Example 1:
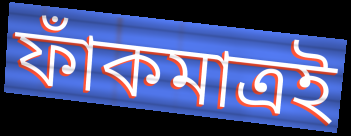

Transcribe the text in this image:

ফাঁকমাত্রই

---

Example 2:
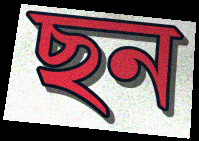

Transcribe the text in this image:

ছন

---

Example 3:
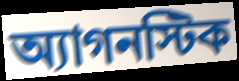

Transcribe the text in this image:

অ্যাগনস্টিক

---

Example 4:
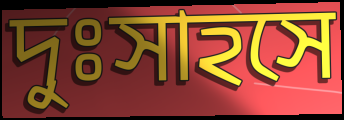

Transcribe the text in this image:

দুঃসাহসে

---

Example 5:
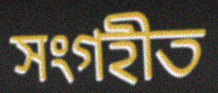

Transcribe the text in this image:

সংগহীত